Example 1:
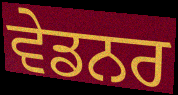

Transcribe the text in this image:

ਵੇਡਨਰ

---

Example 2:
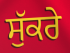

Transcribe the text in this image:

ਸੁੱਕਰੇ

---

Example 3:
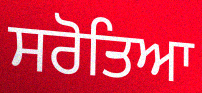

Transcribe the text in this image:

ਸਰੋਤਿਆ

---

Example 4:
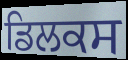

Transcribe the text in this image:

ਡਿਲਕਸ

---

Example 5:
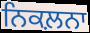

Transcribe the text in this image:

ਨਿਕਲ਼ਨਾ